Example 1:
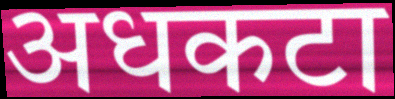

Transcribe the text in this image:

अधकटा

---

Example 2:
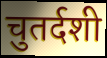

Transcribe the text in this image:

चुतर्दशी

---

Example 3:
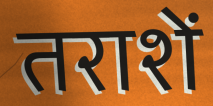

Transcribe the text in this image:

तराशें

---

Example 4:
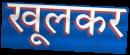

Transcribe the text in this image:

खूलकर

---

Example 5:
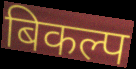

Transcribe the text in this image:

बिकल्प